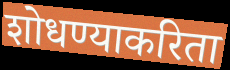
शोधण्याकरिता